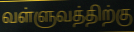
வள்ளுவத்திற்கு